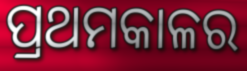
ପ୍ରଥମକାଳର